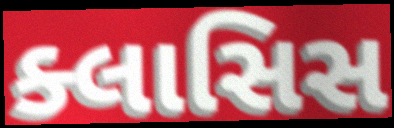
ક્લાસિસ